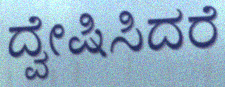
ದ್ವೇಷಿಸಿದರೆ